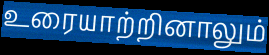
உரையாற்றினாலும்